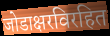
जोडाक्षरविरहित